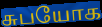
சுபயோக